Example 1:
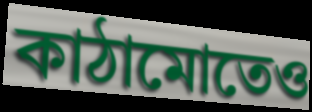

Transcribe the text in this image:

কাঠামোতেও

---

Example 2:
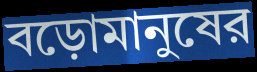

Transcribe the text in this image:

বড়োমানুষের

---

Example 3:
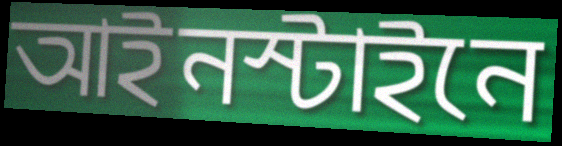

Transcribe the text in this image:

আইনস্টাইনে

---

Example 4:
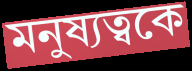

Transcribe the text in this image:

মনুষ্যত্বকে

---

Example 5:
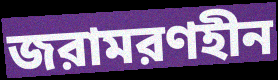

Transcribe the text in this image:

জরামরণহীন